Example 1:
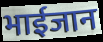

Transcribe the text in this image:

भाईजान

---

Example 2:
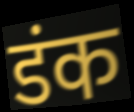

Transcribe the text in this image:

डंक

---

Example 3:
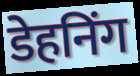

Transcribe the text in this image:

डेहनिंग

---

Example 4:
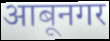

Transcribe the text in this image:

आबूनगर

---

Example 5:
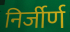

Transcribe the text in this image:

निर्जीर्ण